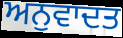
ਅਨੁਵਾਦਤ